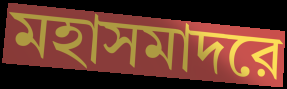
মহাসমাদরে